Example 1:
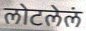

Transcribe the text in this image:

लोटलेलं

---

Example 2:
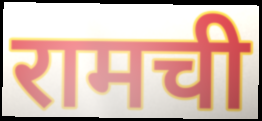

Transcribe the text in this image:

रामची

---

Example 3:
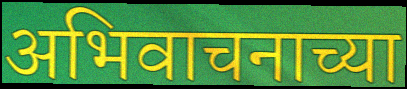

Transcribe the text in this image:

अभिवाचनाच्या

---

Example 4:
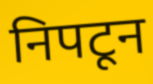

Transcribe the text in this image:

निपटून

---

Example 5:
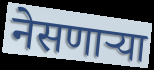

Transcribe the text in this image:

नेसणाऱ्या